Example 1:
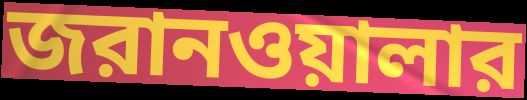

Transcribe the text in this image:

জরানওয়ালার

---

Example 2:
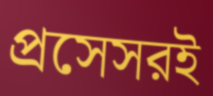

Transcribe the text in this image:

প্রসেসরই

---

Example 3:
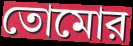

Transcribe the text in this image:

তোমোর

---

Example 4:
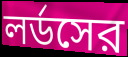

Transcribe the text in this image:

লর্ডসের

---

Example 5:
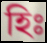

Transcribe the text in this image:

হিঃ